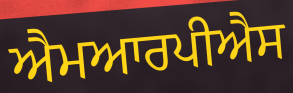
ਐਮਆਰਪੀਐਸ